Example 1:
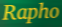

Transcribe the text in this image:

Rapho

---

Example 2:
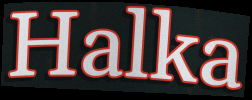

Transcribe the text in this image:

Halka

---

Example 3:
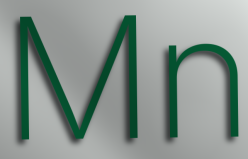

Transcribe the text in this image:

Mn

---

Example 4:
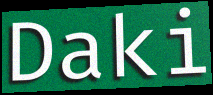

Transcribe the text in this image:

Daki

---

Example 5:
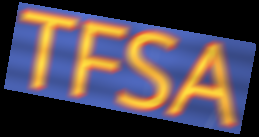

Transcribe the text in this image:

TFSA